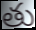
తు